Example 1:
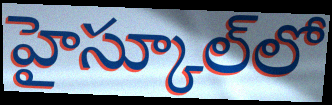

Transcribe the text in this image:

హైస్కూల్‌లో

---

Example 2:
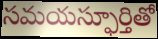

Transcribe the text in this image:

సమయస్ఫూర్తితో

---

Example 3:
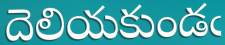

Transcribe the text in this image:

దెలియకుండఁ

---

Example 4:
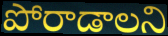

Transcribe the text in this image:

పోరాడాలని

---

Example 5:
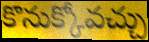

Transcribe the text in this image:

కొనుక్కోవచ్చు